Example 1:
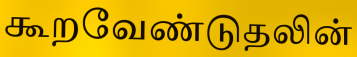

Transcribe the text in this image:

கூறவேண்டுதலின்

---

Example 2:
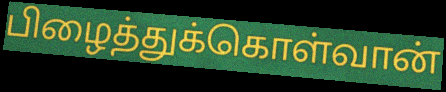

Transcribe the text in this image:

பிழைத்துக்கொள்வான்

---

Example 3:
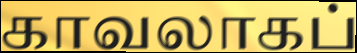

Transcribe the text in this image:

காவலாகப்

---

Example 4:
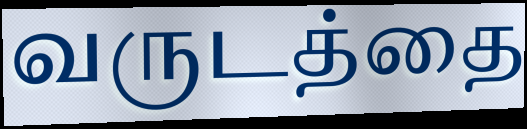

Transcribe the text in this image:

வருடத்தை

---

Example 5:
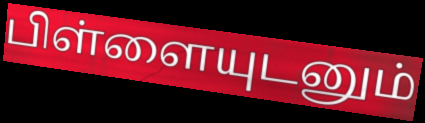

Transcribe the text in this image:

பிள்ளையுடனும்